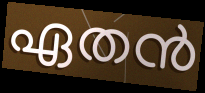
ഏതൻ